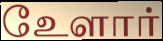
உேளார்